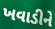
ખવાડીને